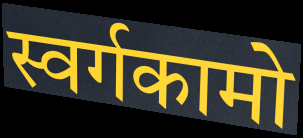
स्वर्गकामो